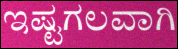
ಇಷ್ಟಗಲವಾಗಿ